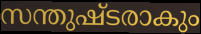
സന്തുഷ്ടരാകും